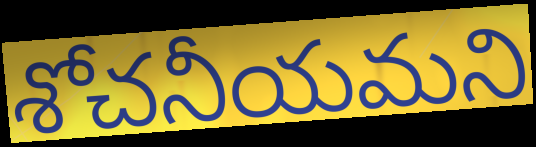
శోచనీయమని